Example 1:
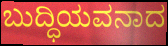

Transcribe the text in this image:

ಬುದ್ಧಿಯವನಾದ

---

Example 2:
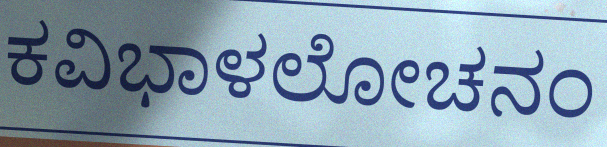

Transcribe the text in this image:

ಕವಿಭಾಳಲೋಚನಂ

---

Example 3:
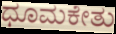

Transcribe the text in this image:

ಧೂಮಕೇತು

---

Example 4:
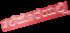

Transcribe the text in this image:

ತಲೆಹೊರೆಯಲ್ಲಿ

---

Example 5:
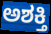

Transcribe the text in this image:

ಅಶಕ್ತಿ